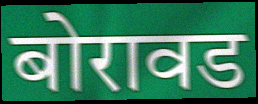
बोरावड